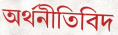
অর্থনীতিবিদ